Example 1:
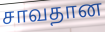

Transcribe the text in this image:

சாவதான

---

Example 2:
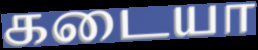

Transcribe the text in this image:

கடையா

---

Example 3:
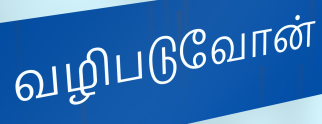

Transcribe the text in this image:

வழிபடுவோன்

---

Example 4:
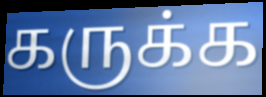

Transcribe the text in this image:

கருக்க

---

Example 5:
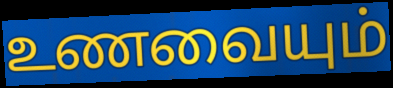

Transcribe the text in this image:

உணவையும்